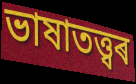
ভাষাতত্ত্বৰ